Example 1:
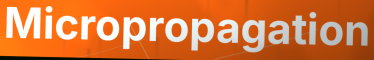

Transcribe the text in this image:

Micropropagation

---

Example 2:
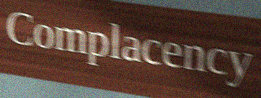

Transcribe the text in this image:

Complacency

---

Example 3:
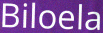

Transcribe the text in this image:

Biloela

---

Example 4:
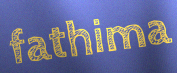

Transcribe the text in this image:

fathima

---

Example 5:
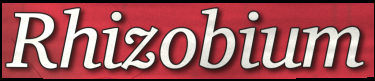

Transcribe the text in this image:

Rhizobium